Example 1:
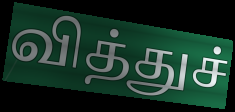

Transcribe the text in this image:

வித்துச்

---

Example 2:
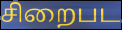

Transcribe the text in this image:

சிறைபட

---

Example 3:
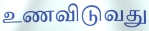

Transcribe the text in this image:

உணவிடுவது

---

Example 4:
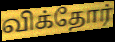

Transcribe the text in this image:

விக்தோர்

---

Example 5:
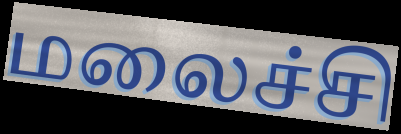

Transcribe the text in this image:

மலைச்சி